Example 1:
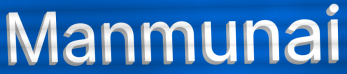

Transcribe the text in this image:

Manmunai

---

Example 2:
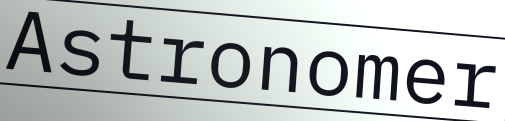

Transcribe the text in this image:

Astronomer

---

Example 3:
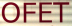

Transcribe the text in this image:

OFET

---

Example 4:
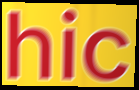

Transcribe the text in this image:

hic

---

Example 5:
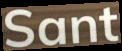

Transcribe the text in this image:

Sant